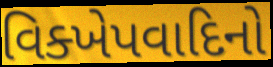
વિક્ખેપવાદિનો